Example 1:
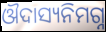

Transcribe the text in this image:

ଔଦାସ୍ୟନିମଗ୍ନ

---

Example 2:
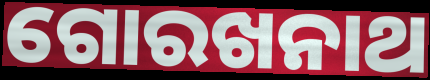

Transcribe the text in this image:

ଗୋରଖନାଥ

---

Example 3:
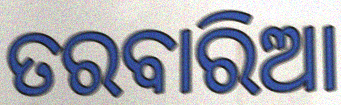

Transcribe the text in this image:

ତରବାରିଆ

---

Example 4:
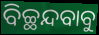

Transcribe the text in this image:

ବିଚ୍ଛନ୍ଦବାବୁ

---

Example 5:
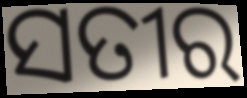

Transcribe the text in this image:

ସତୀର